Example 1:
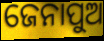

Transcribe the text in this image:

ଜେନାପୁଅ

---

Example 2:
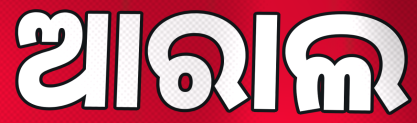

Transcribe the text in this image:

ଆରାଲ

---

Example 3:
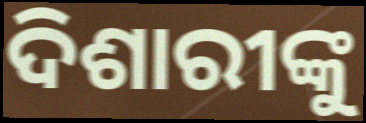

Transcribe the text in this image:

ଦିଶାରୀଙ୍କୁ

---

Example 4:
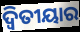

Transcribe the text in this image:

ଦ୍ଵିତୀୟାର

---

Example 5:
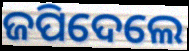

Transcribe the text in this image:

ଜପିଦେଲେ